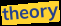
theory